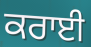
ਕਰਾਈ